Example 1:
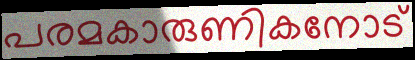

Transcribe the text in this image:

പരമകാരുണികനോട്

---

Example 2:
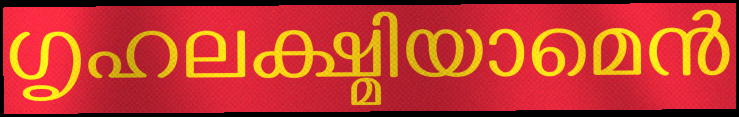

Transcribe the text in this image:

ഗൃഹലക്ഷ്മിയാമെൻ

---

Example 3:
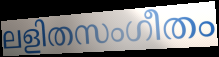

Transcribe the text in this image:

ലളിതസംഗീതം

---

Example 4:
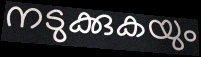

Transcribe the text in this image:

നടുക്കുകയും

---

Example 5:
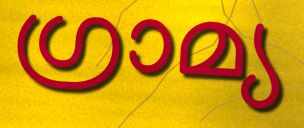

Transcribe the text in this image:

ഗ്രാമ്യ